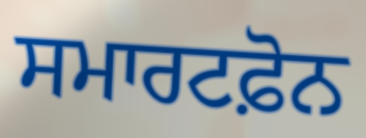
ਸਮਾਰਟਫ਼ੋਨ